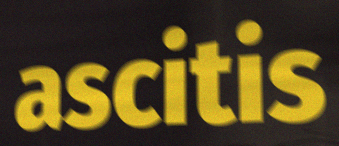
ascitis